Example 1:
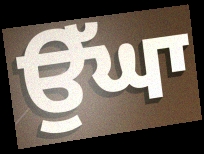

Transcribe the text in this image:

ਉੱਘਾ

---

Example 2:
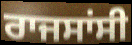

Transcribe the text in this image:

ਰਾਜਸਾਂਸੀ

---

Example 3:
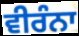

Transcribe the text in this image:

ਵੀਰੰਨਾ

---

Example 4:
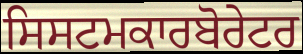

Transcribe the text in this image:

ਸਿਸਟਮਕਾਰਬੋਰੇਟਰ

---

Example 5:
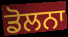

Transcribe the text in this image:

ਡੋਲਨਾ